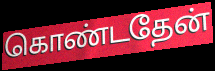
கொண்டதேன்